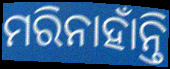
ମରିନାହାଁନ୍ତି